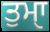
ਤੁਮਾੑ